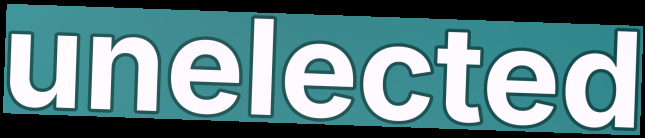
unelected